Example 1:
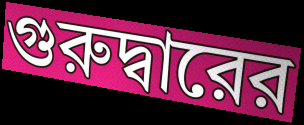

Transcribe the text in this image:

গুরুদ্বারের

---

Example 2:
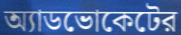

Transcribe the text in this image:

অ্যাডভোকেটের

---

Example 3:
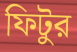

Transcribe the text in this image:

ফিটুর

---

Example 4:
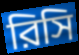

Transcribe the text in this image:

রিসি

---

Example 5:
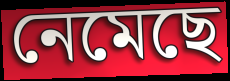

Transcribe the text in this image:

নেমেছে